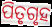
ପିତୃଗୃହ